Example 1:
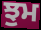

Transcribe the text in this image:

ਝੁਮ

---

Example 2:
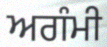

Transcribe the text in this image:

ਅਗੰਮੀ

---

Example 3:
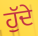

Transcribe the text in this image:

ਹੁੱਦੇ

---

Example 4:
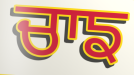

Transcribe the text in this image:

ਚਾਙ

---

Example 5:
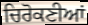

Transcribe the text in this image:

ਚਿਰੋਕਣੀਆਂ